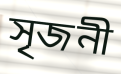
সৃজনী